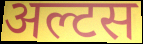
अल्टस